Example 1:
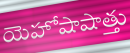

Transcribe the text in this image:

యెహోషాషాత్తు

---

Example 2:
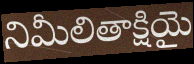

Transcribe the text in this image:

నిమీలితాక్షియై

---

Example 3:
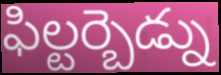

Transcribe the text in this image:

ఫిల్టర్బెడ్ను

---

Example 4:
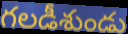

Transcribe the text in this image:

గలడీశుండు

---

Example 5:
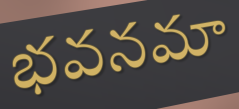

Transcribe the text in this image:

భవనమా